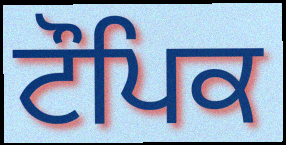
ਟੌਪਿਕ